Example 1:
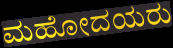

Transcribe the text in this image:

ಮಹೋದಯರು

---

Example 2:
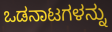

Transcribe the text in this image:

ಒಡನಾಟಗಳನ್ನು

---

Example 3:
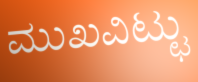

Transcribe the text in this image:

ಮುಖವಿಟ್ಟು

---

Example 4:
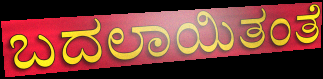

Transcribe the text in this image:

ಬದಲಾಯಿತಂತೆ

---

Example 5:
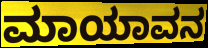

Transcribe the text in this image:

ಮಾಯಾವನ